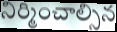
నిర్మించాల్సిన